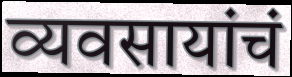
व्यवसायांचं